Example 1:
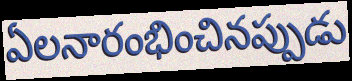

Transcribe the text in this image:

ఏలనారంభించినప్పుడు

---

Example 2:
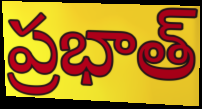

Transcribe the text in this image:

ప్రభాత్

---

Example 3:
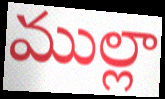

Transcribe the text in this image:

ముల్లా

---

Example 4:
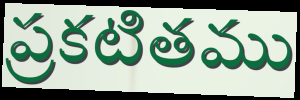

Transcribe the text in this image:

ప్రకటితము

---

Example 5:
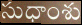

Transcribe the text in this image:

సుధాంశు